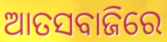
ଆତସବାଜିରେ